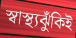
স্বাস্থ্যঝুঁকিই